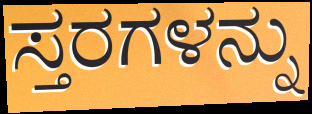
ಸ್ತರಗಳನ್ನು